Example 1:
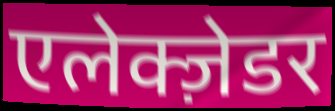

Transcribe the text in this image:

एलेक्ज़ेडर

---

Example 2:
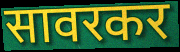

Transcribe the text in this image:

सावरकर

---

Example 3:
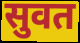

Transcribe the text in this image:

सुवत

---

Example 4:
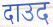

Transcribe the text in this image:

दाउद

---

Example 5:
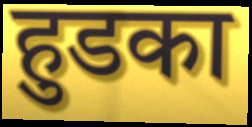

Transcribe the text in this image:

हुडका